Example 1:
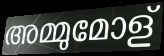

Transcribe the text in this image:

അമ്മുമോള്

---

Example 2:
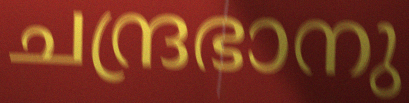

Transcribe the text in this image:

ചന്ദ്രഭാനു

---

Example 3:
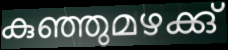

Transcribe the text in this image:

കുഞ്ഞുമഴക്കു്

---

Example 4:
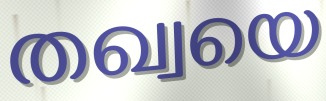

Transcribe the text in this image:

തഖ്വയെ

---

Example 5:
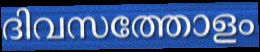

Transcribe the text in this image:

ദിവസത്തോളം